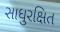
સાધુરક્ષિત